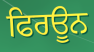
ਫਿਰਊਨ